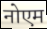
नोएम